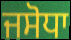
ਜਸੋਧਾ